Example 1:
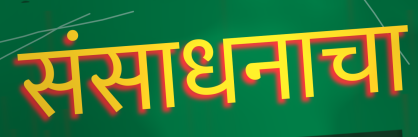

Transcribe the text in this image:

संसाधनाचा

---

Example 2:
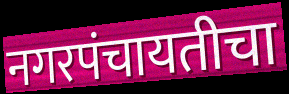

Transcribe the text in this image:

नगरपंचायतीचा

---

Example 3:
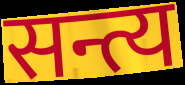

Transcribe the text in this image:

सन्त्य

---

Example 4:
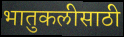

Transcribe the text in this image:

भातुकलीसाठी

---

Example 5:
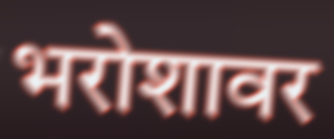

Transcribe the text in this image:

भरोशावर